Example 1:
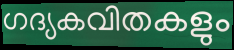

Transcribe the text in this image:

ഗദ്യകവിതകളും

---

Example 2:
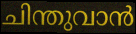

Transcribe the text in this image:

ചിന്തുവാൻ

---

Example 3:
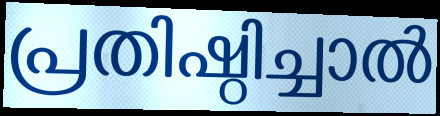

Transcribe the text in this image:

പ്രതിഷ്ഠിച്ചാൽ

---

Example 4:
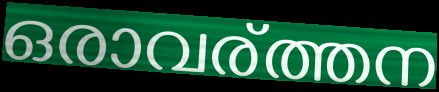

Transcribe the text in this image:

ഒരാവര്ത്തന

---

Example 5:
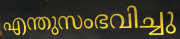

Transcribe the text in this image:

എന്തുസംഭവിച്ചു